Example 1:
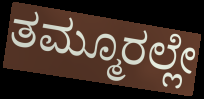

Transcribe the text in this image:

ತಮ್ಮೂರಲ್ಲೇ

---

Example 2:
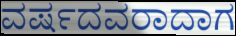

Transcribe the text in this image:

ವರ್ಷದವರಾದಾಗ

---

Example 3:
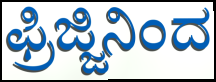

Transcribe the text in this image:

ಫ್ರಿಜ್ಜಿನಿಂದ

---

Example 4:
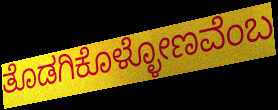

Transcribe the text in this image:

ತೊಡಗಿಕೊಳ್ಳೋಣವೆಂಬ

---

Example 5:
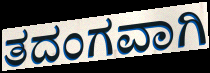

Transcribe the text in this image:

ತದಂಗವಾಗಿ